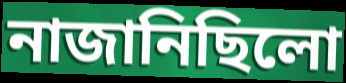
নাজানিছিলো